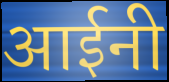
आईनी